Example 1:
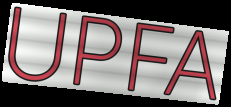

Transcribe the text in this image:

UPFA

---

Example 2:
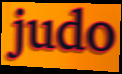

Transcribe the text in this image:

judo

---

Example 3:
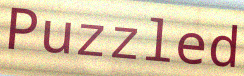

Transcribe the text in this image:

Puzzled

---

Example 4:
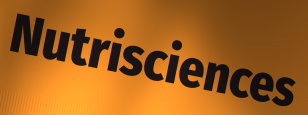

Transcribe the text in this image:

Nutrisciences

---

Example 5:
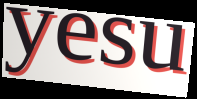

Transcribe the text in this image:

yesu